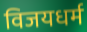
विजयधर्म